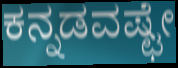
ಕನ್ನಡವಷ್ಟೇ